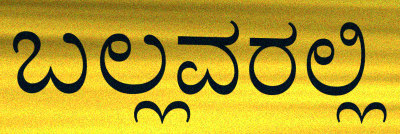
ಬಲ್ಲವರಲ್ಲಿ